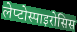
लेप्टोस्पाइरोसिस